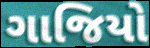
ગાજિયો